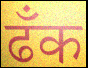
ढँक